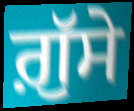
ਗ਼ੁੱਸੇ